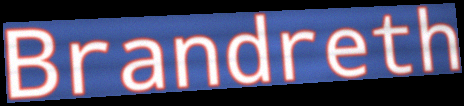
Brandreth